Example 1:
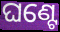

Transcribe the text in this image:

ଘଣ୍ଟେ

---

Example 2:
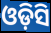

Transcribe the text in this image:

ଓଡ଼ିସି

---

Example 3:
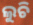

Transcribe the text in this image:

ଲୁଚି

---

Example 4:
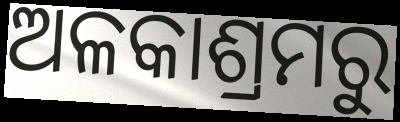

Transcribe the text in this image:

ଅଳକାଶ୍ରମରୁ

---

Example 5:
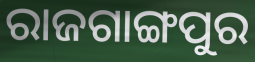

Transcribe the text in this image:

ରାଜଗାଙ୍ଗପୁର